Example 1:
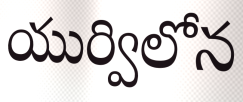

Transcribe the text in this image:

యుర్విలోన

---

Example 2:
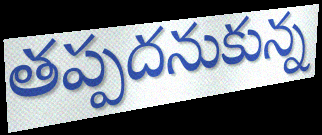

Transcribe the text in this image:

తప్పదనుకున్న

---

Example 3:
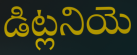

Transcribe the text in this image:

డిట్లనియె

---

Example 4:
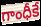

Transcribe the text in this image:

గాంధీకే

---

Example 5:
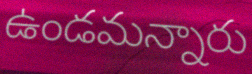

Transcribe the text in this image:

ఉండమన్నారు